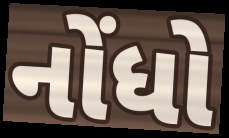
નોંધો